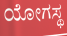
ಯೋಗಸ್ಥ